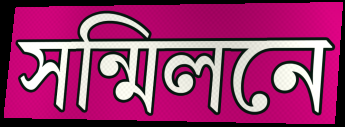
সন্মিলনে